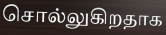
சொல்லுகிறதாக